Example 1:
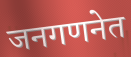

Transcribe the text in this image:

जनगणनेत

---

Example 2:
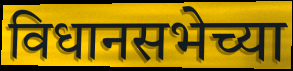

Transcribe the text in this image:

विधानसभेच्या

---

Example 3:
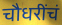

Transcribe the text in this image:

चौधरींचं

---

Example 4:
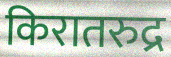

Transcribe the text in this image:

किरातरुद्र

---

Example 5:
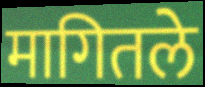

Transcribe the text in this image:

मागितले